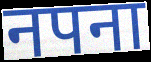
नपना